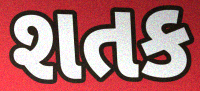
શતક